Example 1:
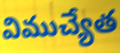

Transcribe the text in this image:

విముచ్యేత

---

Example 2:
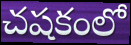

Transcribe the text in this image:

చషకంలో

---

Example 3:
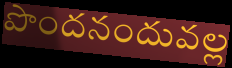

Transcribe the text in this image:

పొందనందువల్ల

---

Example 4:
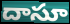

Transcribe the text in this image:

దాసూ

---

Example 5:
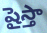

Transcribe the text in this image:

షైస్తా